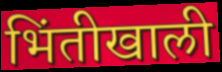
भिंतीखाली